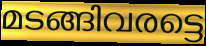
മടങ്ങിവരട്ടെ